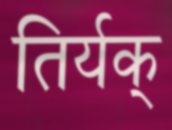
तिर्यक्